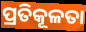
ପ୍ରତିକୂଳତା